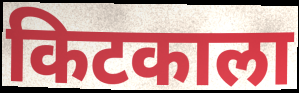
किटकाला